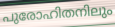
പുരോഹിതനിലും